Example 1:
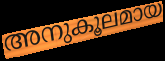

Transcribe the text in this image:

അനുകൂലമായ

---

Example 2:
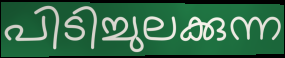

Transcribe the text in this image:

പിടിച്ചുലക്കുന്ന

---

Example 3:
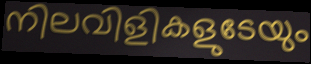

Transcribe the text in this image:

നിലവിളികളുടേയും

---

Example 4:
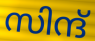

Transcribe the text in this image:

സിന്ദ്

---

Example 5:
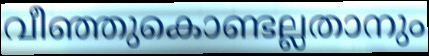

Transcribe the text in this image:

വീഞ്ഞുകൊണ്ടല്ലതാനും